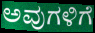
ಅವುಗಳಿಗೆ